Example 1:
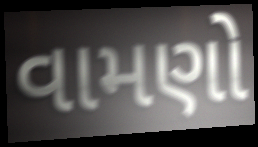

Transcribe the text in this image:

વામણો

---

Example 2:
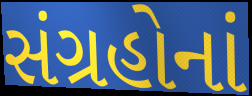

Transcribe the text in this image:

સંગ્રહોનાં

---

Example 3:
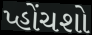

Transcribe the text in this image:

પ્હોંચશો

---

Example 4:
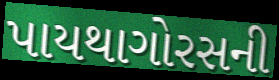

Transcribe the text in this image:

પાયથાગોરસની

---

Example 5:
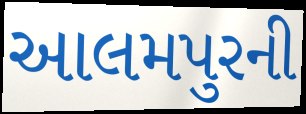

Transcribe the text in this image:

આલમપુરની